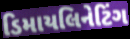
ડિમાયલિનેટિંગ